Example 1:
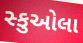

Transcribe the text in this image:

સ્કુઓલા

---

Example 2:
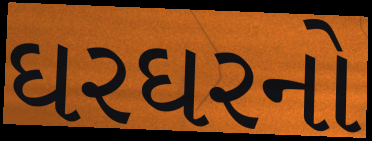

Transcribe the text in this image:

ઘરઘરનો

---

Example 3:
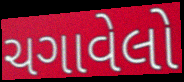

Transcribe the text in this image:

ચગાવેલો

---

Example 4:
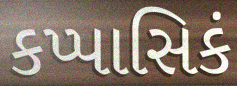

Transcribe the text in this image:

કપ્પાસિકં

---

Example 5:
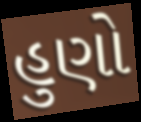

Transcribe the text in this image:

હુણો